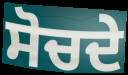
ਸੋਚਦੇ